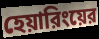
হেয়ারিংয়ের